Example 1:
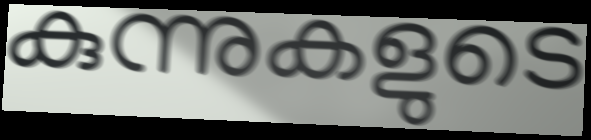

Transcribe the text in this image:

കുന്നുകളുടെ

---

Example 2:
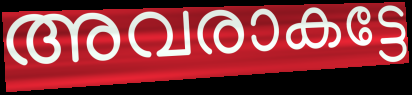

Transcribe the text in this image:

അവരാകട്ടേ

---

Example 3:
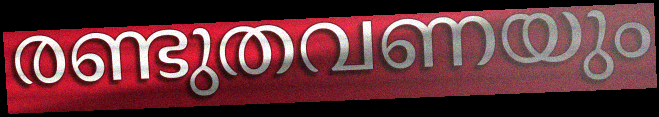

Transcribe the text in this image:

രണ്ടുതവണയും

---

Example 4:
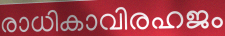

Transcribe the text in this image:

രാധികാവിരഹജം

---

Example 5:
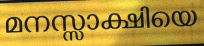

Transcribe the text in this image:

മനസ്സാക്ഷിയെ